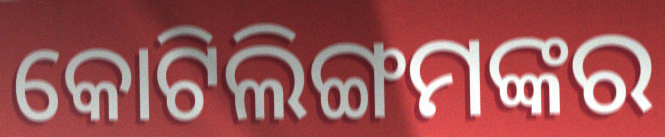
କୋଟିଲିଙ୍ଗମଙ୍କର